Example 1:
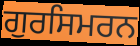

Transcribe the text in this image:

ਗੁਰਸਿਮਰਨ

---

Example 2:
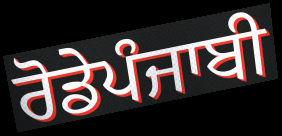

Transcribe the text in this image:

ਰੋਡੇਪੰਜਾਬੀ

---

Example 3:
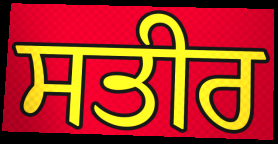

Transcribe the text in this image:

ਸਤੀਰ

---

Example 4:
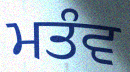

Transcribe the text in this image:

ਮਤੰਵ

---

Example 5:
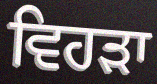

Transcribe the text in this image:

ਵਿਹੜਾ